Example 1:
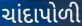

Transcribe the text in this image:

ચાંદાપોળી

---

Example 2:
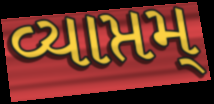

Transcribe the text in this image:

વ્યાપ્તમ્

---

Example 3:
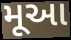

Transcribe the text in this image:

મૂઆ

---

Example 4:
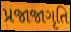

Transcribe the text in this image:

પ્રજાજાગૃતિ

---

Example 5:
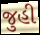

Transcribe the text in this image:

જુહી